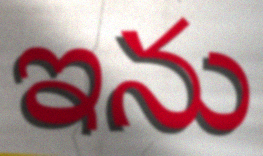
ఇను